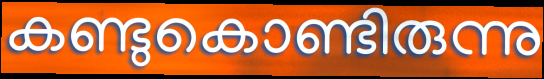
കണ്ടുകൊണ്ടിരുന്നു